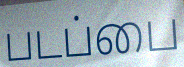
படப்பை